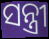
ସନ୍ତ୍ରୀ